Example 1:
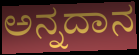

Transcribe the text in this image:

ಅನ್ನದಾನ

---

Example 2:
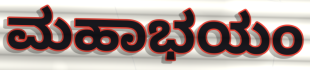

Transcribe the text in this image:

ಮಹಾಭಯಂ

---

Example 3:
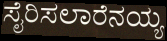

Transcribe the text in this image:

ಸೈರಿಸಲಾರೆನಯ್ಯ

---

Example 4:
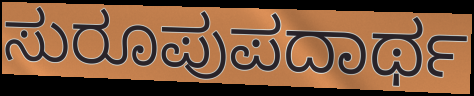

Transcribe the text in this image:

ಸುರೂಪುಪದಾರ್ಥ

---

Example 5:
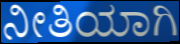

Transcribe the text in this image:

ನೀತಿಯಾಗಿ